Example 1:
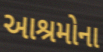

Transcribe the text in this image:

આશ્રમોના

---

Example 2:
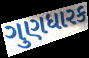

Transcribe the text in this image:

ગુણધારક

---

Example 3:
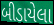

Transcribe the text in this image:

બીડાયેલા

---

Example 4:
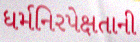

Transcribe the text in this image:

ધર્મનિરપેક્ષતાની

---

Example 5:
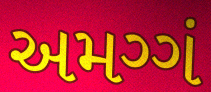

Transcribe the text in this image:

અમગ્ગં